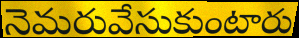
నెమరువేసుకుంటారు